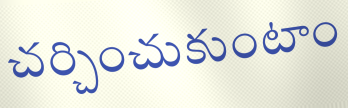
చర్చించుకుంటాం